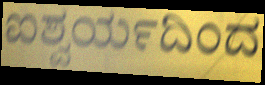
ಐಶ್ವರ್ಯದಿಂದ